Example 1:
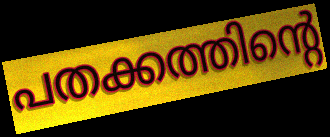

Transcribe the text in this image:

പതക്കത്തിന്റെ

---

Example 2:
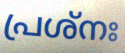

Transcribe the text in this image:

പ്രശ്നഃ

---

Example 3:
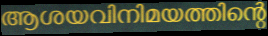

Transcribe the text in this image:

ആശയവിനിമയത്തിന്റെ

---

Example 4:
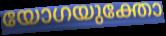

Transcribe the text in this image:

യോഗയുക്തോ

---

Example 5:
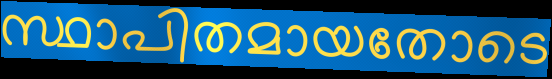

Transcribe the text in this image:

സ്ഥാപിതമായതോടെ